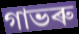
গাভৰু